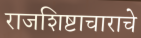
राजशिष्टाचाराचे